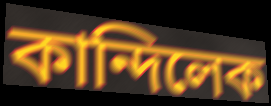
কান্দিলেক